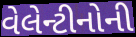
વેલેન્ટીનોની